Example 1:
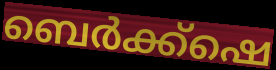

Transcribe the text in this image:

ബെർക്ക്ഷെ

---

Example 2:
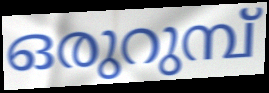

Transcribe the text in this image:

ഒരുറുമ്പ്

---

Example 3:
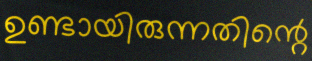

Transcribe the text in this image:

ഉണ്ടായിരുന്നതിന്റെ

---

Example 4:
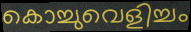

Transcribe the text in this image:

കൊച്ചുവെളിച്ചം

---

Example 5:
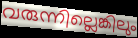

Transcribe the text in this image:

വരുന്നില്ലെങ്കിലും